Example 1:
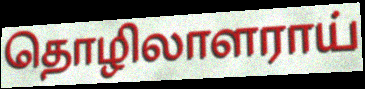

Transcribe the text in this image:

தொழிலாளராய்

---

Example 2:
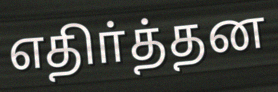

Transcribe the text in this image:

எதிர்த்தன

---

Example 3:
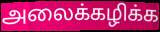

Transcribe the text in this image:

அலைக்கழிக்க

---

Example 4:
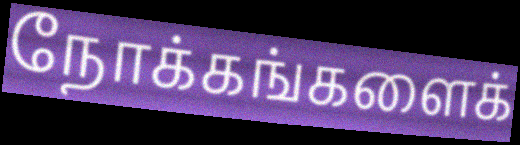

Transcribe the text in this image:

நோக்கங்களைக்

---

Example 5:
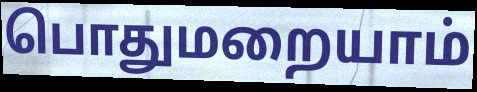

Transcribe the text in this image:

பொதுமறையாம்